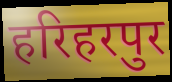
हरिहरपुर